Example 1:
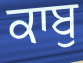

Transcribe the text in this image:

ਕਾਬੁ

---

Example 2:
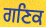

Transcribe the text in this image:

ਗਣਿਕ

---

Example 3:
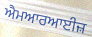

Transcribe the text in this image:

ਐਮਆਰਆਈਜ਼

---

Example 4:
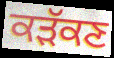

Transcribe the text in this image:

ਕੜੱਕਣ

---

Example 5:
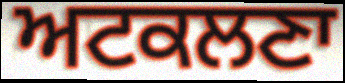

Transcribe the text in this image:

ਅਟਕਲਣਾ